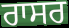
ਰਾਸਰ